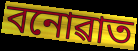
বনোৱাত